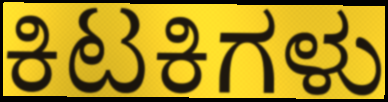
ಕಿಟಕಿಗಳು